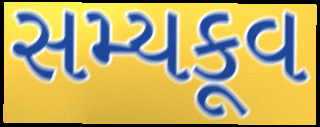
સમ્યકૂવ